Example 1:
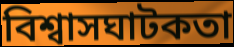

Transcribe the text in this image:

বিশ্বাসঘাটকতা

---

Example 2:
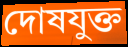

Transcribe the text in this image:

দোষযুক্ত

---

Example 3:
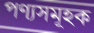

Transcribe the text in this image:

পণ্যসমূহক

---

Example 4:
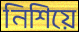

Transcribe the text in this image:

নিশিয়ে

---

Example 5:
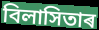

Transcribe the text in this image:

বিলাসিতাৰ